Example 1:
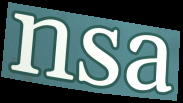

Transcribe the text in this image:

nsa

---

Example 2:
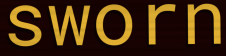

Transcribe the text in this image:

sworn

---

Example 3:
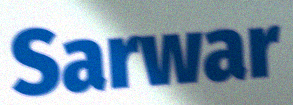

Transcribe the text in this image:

Sarwar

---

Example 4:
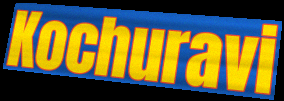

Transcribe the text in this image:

Kochuravi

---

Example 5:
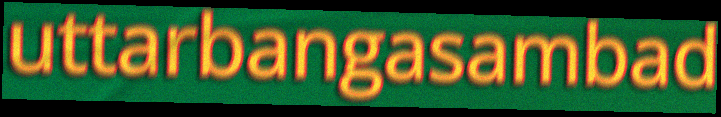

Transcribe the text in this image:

uttarbangasambad